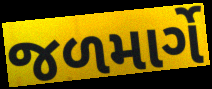
જળમાર્ગે